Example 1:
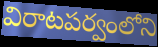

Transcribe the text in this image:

విరాటపర్వంలోని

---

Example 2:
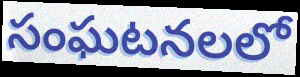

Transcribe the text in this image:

సంఘటనలలో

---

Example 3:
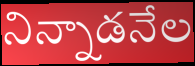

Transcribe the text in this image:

నిన్నాడనేల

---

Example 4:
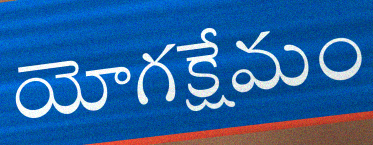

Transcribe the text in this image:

యోగక్షేమం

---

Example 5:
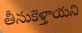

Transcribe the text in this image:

తీసుకెళ్తాయని